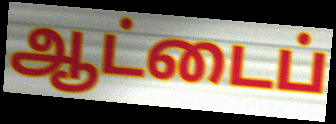
ஆட்டைப்